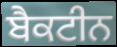
ਬੈਕਟੀਨ